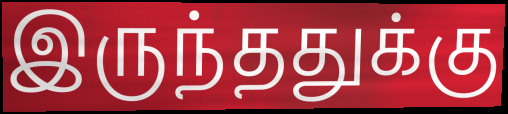
இருந்ததுக்கு